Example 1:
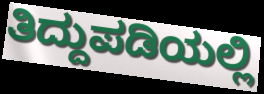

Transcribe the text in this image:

ತಿದ್ದುಪಡಿಯಲ್ಲಿ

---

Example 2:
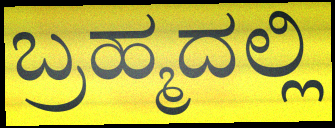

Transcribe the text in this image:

ಬ್ರಹ್ಮದಲ್ಲಿ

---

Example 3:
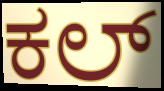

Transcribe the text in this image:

ಕಲ್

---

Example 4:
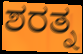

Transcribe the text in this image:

ಶರತ್ನ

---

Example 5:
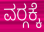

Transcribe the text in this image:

ವರ‍್ಗಕ್ಕೆ